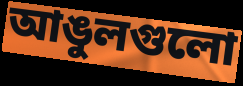
আঙুলগুলো